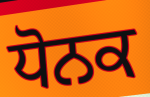
ਧੋਨਕ